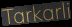
Tarkarli